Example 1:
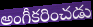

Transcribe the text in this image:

అంగీకరించడు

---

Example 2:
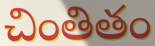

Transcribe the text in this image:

చింతితం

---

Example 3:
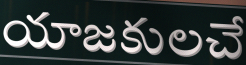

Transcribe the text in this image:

యాజకులచే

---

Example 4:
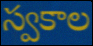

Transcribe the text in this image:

స్వకాల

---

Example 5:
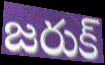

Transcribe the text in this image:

జరుక్